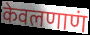
केवलणाणं